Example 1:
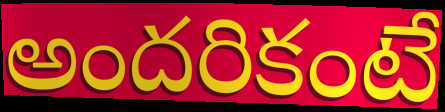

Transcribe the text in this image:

అందరికంటే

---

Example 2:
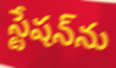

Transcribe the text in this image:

స్టేషన్‌ను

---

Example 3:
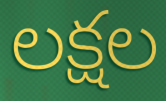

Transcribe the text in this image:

లక్షల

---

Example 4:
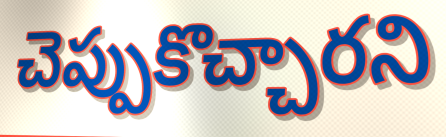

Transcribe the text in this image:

చెప్పుకొచ్చారని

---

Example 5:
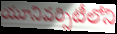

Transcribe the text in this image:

యూనివర్సిటీలోని